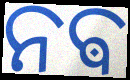
ନଵ